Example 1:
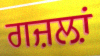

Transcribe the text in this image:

ਗਜ਼ਲ਼ਾਂ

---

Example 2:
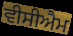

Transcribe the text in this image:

ਵੀਸੀਐਮ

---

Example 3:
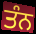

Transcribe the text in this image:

ਤੰਨ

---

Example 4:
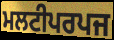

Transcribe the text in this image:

ਮਲਟੀਪਰਪਜ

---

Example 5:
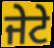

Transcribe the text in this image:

ਜੇਟੇ